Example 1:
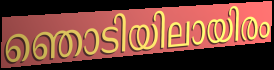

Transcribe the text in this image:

ഞൊടിയിലായിരം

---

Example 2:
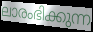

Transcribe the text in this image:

ലാരംഭിക്കുന്ന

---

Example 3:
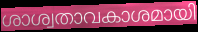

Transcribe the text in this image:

ശാശ്വതാവകാശമായി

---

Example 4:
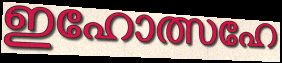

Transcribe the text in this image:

ഇഹോത്സഹേ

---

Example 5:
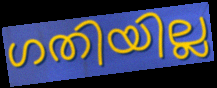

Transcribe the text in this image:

ഗതിയില്ല